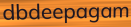
dbdeepagam